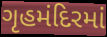
ગૃહમંદિરમાં